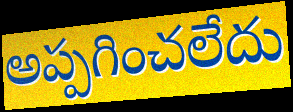
అప్పగించలేదు